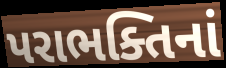
પરાભક્તિનાં